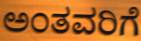
ಅಂತವರಿಗೆ